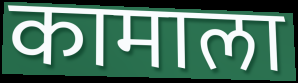
कामाला